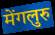
मेंगलुरु